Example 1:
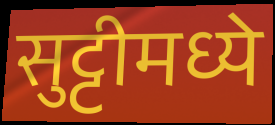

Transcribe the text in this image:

सुट्टीमध्ये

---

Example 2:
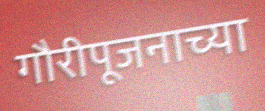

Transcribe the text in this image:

गौरीपूजनाच्या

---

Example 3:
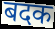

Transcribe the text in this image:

बदक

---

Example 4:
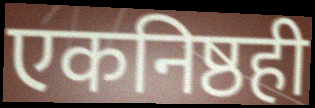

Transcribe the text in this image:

एकनिष्ठही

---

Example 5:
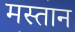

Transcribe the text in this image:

मस्तान